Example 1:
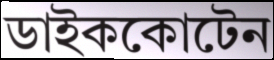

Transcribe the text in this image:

ডাইককোটেন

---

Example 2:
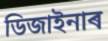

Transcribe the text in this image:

ডিজাইনাৰ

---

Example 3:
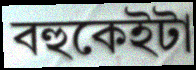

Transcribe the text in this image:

বহুকেইটা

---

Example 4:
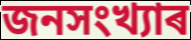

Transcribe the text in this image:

জনসংখ্যাৰ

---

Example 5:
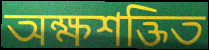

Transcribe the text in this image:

অক্ষশক্তিত